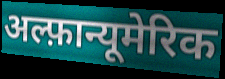
अल्फ़ान्यूमेरिक